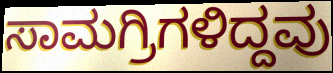
ಸಾಮಗ್ರಿಗಳಿದ್ದವು